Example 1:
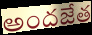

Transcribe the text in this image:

అందజేత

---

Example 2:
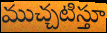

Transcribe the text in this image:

ముచ్చటిస్తూ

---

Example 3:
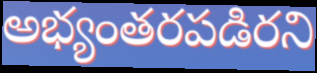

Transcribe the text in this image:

అభ్యంతరపడిరని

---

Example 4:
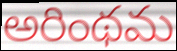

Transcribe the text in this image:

అరింథమ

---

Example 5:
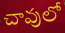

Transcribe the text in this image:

చావులో